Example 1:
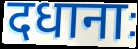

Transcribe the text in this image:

दधानाः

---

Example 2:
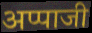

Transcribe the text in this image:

अप्पाजी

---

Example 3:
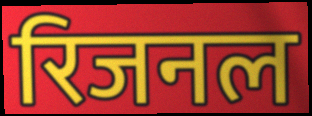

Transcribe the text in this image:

रिजनल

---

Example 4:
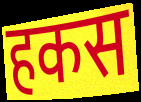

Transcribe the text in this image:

हकस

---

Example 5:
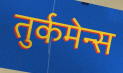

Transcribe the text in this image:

तुर्कमेन्स